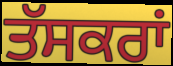
ਤੱਸਕਰਾਂ